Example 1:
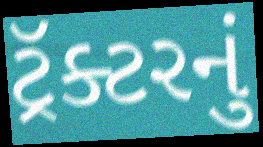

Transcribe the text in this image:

ટ્રૅક્ટરનું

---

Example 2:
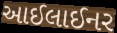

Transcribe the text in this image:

આઈલાઈનર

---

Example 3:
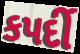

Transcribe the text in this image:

કપર્દી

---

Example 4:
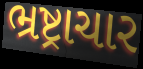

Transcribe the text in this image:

ભ્રષ્ટ્રાચાર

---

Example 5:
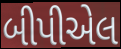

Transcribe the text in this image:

બીપીએલ